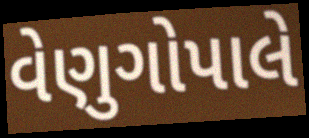
વેણુગોપાલે